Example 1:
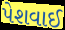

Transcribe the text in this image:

પેશવાઈ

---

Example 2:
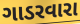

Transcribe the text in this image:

ગાડરવારા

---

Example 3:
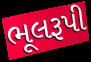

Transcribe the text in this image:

ભૂલરૂપી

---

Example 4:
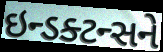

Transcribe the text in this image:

ઇન્ડક્ટન્સને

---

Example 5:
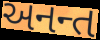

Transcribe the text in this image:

અનન્ત